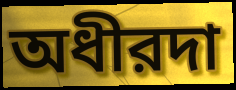
অধীরদা